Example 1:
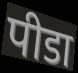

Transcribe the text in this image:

पीडा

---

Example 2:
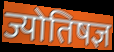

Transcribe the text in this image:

ज्योतिषज्ञ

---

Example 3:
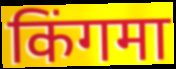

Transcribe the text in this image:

किंगमा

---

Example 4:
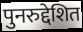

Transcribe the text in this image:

पुनरुद्देशित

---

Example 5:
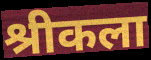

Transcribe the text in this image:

श्रीकला